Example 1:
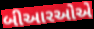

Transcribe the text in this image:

બીઆરઓએ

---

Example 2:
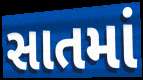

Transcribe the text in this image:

સાતમાં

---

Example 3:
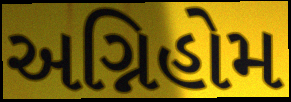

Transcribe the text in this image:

અગ્નિહોમ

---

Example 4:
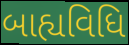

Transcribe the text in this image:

બાહ્યવિધિ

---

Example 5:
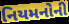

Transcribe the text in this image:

નિયમનોની